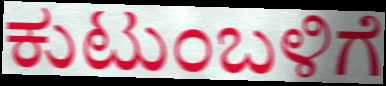
ಕುಟುಂಬಳಿಗೆ